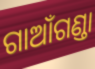
ଗାଆଁଗଣ୍ଡା